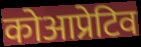
कोआप्रेटिव